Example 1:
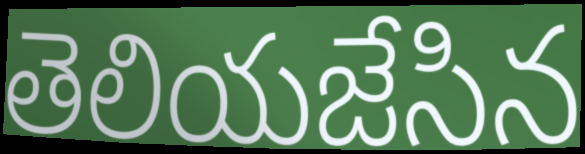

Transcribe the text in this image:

తెలియజేసిన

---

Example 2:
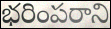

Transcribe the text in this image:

భరింపరాని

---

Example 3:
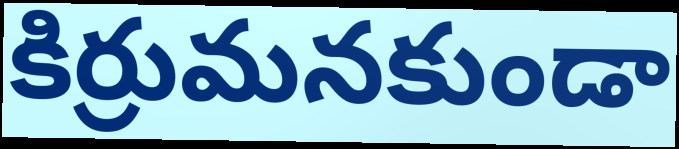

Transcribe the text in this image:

కిర్రుమనకుండా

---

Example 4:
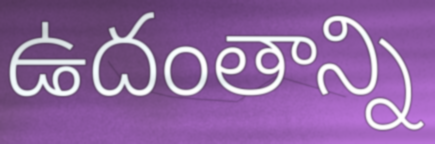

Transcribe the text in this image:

ఉదంతాన్ని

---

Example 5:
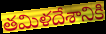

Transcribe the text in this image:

తమిళదేశానికి